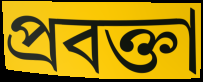
প্ৰবক্তা